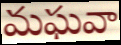
మఘవా